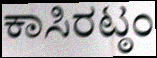
ಕಾಸಿರಟ್ಠಂ